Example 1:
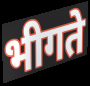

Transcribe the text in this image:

भीगते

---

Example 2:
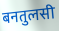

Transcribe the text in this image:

बनतुलसी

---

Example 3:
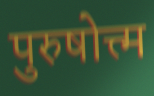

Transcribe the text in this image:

पुरुषोत्त्म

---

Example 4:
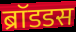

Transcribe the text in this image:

ब्रॉडडस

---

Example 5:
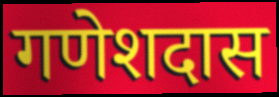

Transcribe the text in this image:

गणेशदास